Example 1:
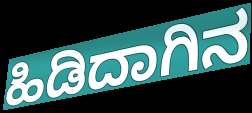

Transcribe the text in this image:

ಹಿಡಿದಾಗಿನ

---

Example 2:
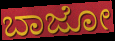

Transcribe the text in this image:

ಬಾಜೋ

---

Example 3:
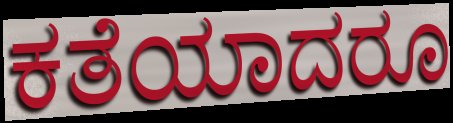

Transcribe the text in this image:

ಕತೆಯಾದರೂ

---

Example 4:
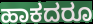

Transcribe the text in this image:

ಹಾಕದರೂ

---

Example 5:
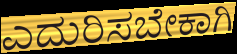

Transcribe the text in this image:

ಎದುರಿಸಬೇಕಾಗಿ